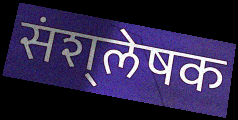
संश्लेषक